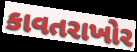
કાવતરાખોર